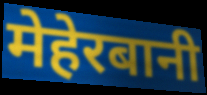
मेहेरबानी